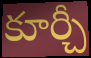
కూర్చీ